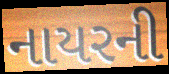
નાયરની